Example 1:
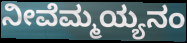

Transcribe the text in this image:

ನೀವೆಮ್ಮಯ್ಯನಂ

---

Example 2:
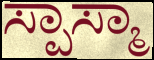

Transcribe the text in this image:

ಸ್ಪಾಸ್ಮಾ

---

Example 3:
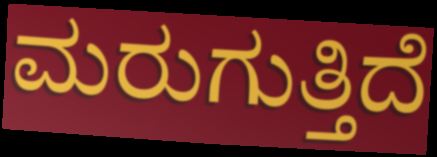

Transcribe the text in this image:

ಮರುಗುತ್ತಿದೆ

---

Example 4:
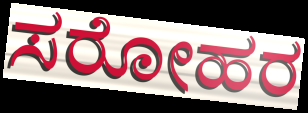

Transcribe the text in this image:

ಸರೋಹರ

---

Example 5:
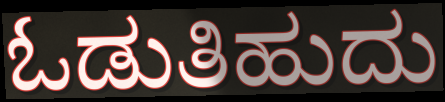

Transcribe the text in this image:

ಓಡುತಿಹುದು